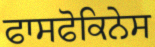
ਫਾਸਫੋਕਿਨੇਸ